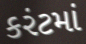
કરંટમાં